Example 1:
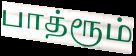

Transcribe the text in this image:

பாத்ரூம்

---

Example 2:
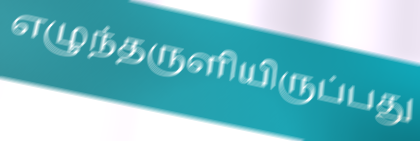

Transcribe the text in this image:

எழுந்தருளியிருப்பது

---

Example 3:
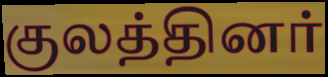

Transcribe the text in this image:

குலத்தினர்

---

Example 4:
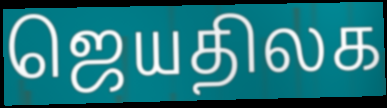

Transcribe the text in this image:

ஜெயதிலக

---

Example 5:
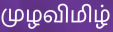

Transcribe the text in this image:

முழவிமிழ்